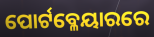
ପୋର୍ଟବ୍ଳେୟାରରେ